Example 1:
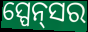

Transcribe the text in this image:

ସ୍ପେନ୍‌ସର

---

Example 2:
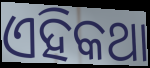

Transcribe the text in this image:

ଏହିକଥା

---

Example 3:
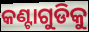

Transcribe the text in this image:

କଣ୍ଟାଗୁଡିକୁ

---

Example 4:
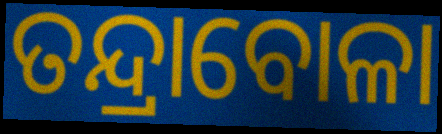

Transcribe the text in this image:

ତନ୍ଦ୍ରାବୋଳା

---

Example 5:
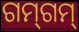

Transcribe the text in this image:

ଗମ୍‌ଗମ୍